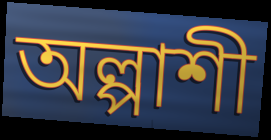
অল্পাশী